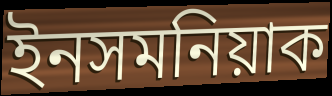
ইনসমনিয়াক